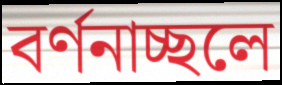
বর্ণনাচ্ছলে